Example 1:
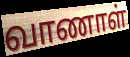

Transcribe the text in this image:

வாணாள்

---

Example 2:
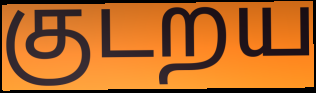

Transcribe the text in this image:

குடறய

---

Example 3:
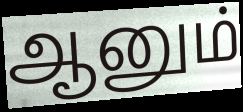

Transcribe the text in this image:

ஆனும்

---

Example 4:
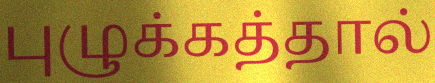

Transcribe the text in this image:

புழுக்கத்தால்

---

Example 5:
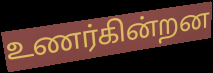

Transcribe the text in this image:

உணர்கின்றன